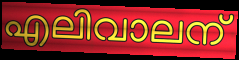
എലിവാലന്